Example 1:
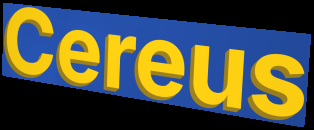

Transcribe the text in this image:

Cereus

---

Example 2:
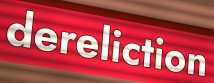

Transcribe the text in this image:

dereliction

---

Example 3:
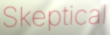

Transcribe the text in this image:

Skeptical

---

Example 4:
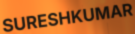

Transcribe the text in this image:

SURESHKUMAR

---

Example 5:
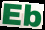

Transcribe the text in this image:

Eb